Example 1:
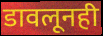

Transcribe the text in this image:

डावलूनही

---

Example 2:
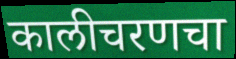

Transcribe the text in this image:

कालीचरणचा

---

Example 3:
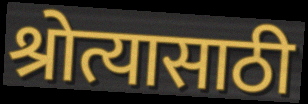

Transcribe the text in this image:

श्रोत्यासाठी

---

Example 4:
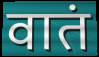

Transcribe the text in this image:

वातं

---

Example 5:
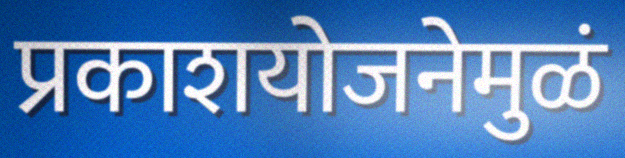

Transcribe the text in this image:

प्रकाशयोजनेमुळं